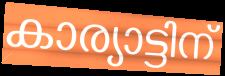
കാര്യാട്ടിന്